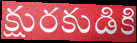
క్షురకుడికి